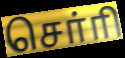
செர்ரி